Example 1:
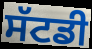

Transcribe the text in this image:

ਸੱਟਡੀ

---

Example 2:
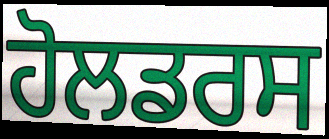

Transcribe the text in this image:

ਹੋਲਡਰਸ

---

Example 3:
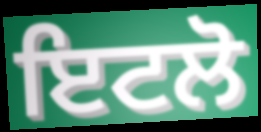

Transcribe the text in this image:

ਇਟਲੋ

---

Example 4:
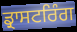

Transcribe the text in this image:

ਡ੍ਰਾਸਟਰਿੰਗ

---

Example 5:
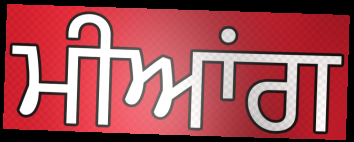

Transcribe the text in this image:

ਮੀਆਂਗ